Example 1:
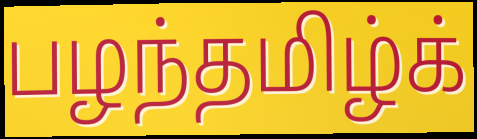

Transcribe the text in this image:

பழந்தமிழ்க்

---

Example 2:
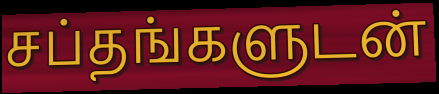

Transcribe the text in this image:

சப்தங்களுடன்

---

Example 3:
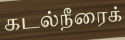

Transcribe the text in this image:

கடல்நீரைக்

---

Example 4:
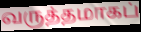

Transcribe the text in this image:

வருத்தமாகப்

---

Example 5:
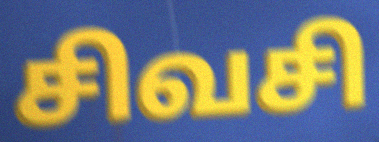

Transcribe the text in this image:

சிவசி